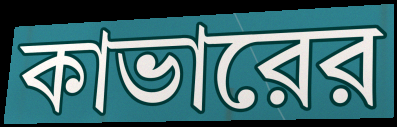
কাভারের